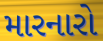
મારનારો